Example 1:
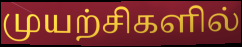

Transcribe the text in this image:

முயற்சிகளில்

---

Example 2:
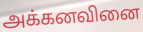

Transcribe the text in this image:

அக்கனவினை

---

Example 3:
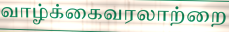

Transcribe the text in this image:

வாழ்க்கைவரலாற்றை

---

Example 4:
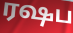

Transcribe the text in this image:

ரஷப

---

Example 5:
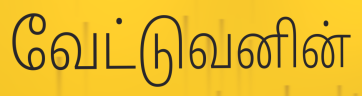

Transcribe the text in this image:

வேட்டுவனின்